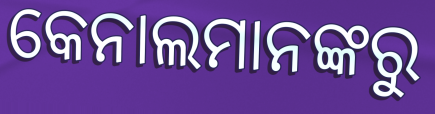
କେନାଲମାନଙ୍କରୁ